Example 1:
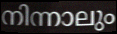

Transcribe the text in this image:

നിന്നാലും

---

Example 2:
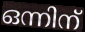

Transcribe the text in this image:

ഒന്നിന്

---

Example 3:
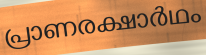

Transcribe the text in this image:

പ്രാണരക്ഷാർഥം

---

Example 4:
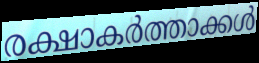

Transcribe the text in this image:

രക്ഷാകർത്താക്കൾ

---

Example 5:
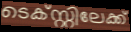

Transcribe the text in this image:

ടെക്സ്റ്റിലേക്ക്